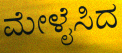
ಮೇಳೈಸಿದ